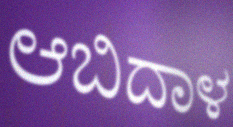
ಆಬಿದಾಳ